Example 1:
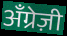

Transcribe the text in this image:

अँग्रेज़ी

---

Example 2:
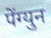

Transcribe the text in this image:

पेंग्युन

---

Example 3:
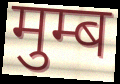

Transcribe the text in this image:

मुम्ब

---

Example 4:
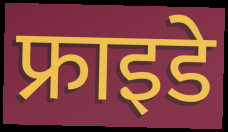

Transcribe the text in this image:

फ्राइडे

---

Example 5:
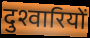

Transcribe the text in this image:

दुश्वारियों